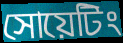
সোয়েটিং